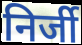
निर्जी